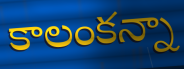
కాలంకన్నా